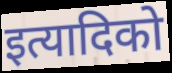
इत्यादिको